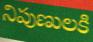
నిపుణులకి